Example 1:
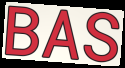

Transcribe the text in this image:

BAS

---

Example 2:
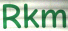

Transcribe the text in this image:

Rkm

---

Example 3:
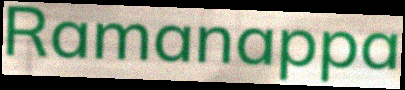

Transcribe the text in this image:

Ramanappa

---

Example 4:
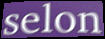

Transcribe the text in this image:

selon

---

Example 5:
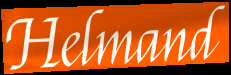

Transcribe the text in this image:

Helmand